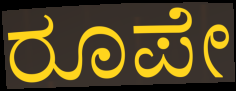
ರೂಪೇ